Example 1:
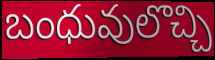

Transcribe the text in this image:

బంధువులొచ్చి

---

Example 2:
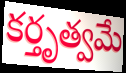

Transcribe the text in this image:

కర్తృత్వమే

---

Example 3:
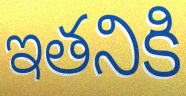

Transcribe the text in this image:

ఇతనికి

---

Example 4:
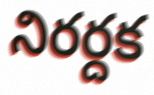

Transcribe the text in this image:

నిరర్దక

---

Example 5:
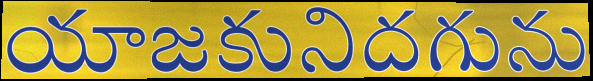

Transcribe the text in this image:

యాజకునిదగును